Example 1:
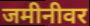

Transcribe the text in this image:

जमीनीवर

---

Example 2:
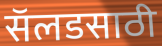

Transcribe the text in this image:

सॅलडसाठी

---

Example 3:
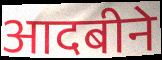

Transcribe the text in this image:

आदबीने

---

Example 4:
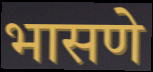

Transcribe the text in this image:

भासणे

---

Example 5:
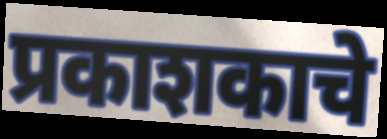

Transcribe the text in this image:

प्रकाशकाचे